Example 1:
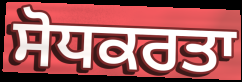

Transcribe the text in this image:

ਸੋਧਕਰਤਾ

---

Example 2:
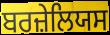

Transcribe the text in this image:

ਬਰਜ਼ੇਲਿਯਸ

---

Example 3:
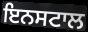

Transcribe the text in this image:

ਇਨਸਟਾਲ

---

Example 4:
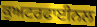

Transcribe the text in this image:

ਕੁਅਟਰਫਾਈਨਲ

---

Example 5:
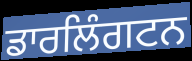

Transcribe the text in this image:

ਡਾਰਲਿੰਗਟਨ